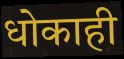
धोकाही